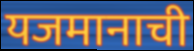
यजमानाची